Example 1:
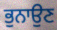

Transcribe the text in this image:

ਭੁਨਾਉਣ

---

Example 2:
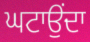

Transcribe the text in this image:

ਘਟਾਉਂਦਾ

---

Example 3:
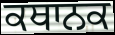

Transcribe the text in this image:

ਕਥਾਨਕ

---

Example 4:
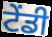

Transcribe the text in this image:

ਟੇਂਡੀ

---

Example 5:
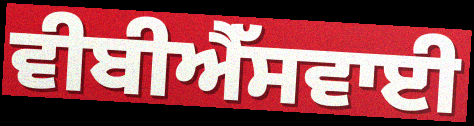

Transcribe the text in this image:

ਵੀਬੀਐੱਸਵਾਈ